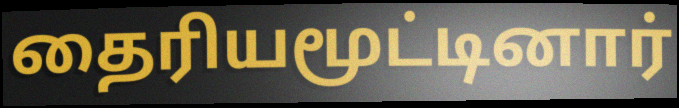
தைரியமூட்டினார்